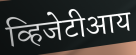
व्हिजेटीआय